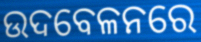
ଉଦବେଳନରେ